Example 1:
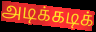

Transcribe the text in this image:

அடிக்கடிக்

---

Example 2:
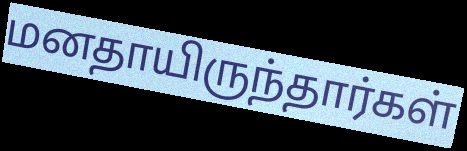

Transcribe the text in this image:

மனதாயிருந்தார்கள்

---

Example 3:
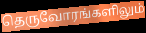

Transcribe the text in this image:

தெருவோரங்களிலும்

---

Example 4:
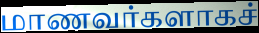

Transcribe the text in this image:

மாணவர்களாகச்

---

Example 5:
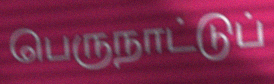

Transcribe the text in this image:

பெருநாட்டுப்